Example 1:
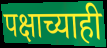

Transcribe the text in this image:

पक्षाच्याही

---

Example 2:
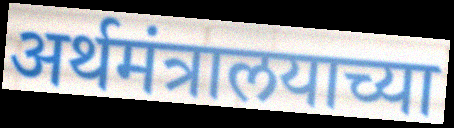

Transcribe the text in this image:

अर्थमंत्रालयाच्या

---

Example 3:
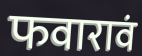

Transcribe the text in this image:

फवारावं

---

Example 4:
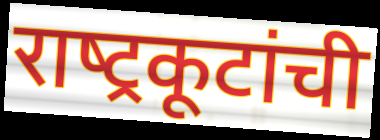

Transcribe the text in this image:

राष्ट्रकूटांची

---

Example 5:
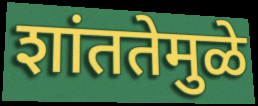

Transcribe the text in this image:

शांततेमुळे